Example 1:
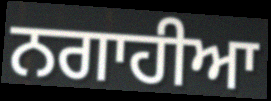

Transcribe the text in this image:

ਨਗਾਹੀਆ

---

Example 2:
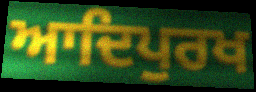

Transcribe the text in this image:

ਆਦਿਪੁਰਖ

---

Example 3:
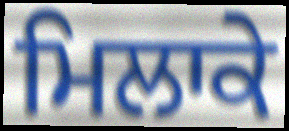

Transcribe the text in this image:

ਮਿਲਾਕੇ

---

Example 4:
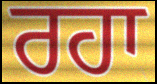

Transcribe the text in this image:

ਰਹਾ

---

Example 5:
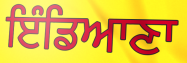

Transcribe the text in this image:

ਇੰਡਿਆਣਾ